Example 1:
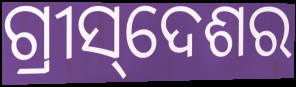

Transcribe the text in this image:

ଗ୍ରୀସ୍‌ଦେଶର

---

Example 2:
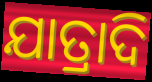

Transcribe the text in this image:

ଯାତ୍ରାଦି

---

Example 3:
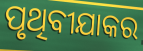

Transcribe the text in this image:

ପୃଥିବୀଯାକର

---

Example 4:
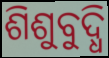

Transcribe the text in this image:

ଶିଶୁବୁଦ୍ଧି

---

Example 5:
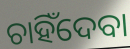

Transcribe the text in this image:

ଚାହିଁଦେବା